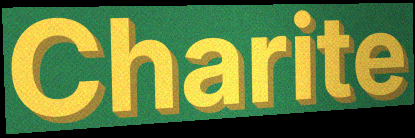
Charite